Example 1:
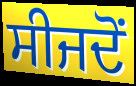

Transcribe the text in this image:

ਸੀਜਦੋਂ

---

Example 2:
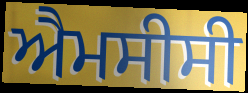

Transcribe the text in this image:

ਐਮਸੀਸੀ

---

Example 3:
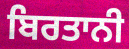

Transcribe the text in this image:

ਬਿਰਤਾਨੀ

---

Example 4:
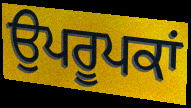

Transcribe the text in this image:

ਉਪਰੂਪਕਾਂ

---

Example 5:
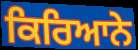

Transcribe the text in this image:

ਕਿਰਿਆਨੇ